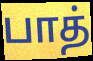
பாத்